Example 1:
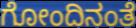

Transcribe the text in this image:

ಗೋಂದಿನಂತೆ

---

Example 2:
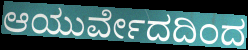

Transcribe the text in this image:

ಆಯುರ್ವೇದದಿಂದ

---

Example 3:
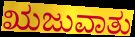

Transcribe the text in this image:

ಋಜುವಾತು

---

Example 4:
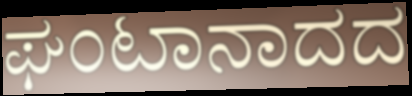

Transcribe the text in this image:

ಘಂಟಾನಾದದ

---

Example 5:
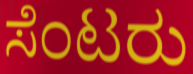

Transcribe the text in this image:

ಸೆಂಟರು